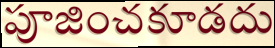
పూజించకూడదు